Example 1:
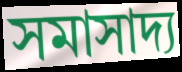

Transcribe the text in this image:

সমাসাদ্য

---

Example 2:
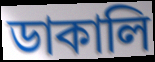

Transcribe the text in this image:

ডাকালি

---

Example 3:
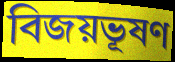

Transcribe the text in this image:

বিজয়ভূষণ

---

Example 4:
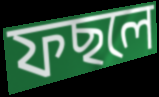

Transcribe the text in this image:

ফছলে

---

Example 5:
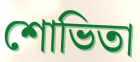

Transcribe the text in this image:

শোভিতা